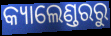
କ୍ୟାଲେଣ୍ଡରରୁ